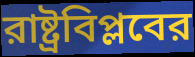
রাষ্ট্রবিপ্লবের